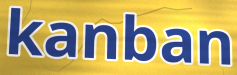
kanban